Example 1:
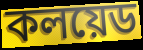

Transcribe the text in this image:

কলয়েড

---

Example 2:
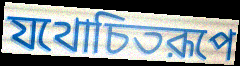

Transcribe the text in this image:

যথোচিতরূপে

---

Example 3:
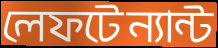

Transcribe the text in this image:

লেফটেন্যান্ট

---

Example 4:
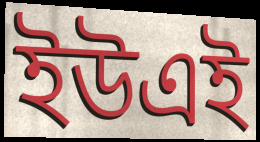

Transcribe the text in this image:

ইউএই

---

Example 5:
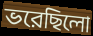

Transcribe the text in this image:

ভরেছিলো